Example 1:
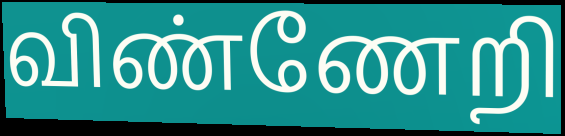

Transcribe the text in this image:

விண்ணேறி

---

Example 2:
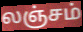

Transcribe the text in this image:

லஞ்சம்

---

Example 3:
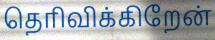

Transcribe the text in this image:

தெரிவிக்கிறேன்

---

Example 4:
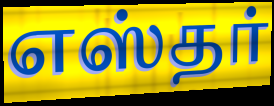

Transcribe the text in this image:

எஸ்தர்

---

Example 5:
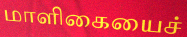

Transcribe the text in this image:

மாளிகையைச்